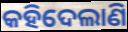
କହିଦେଲାଣି